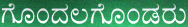
ಗೊಂದಲಗೊಂಡರು